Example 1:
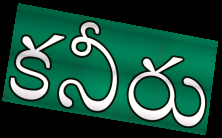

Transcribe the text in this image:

కనీరు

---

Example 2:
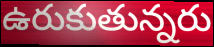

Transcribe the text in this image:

ఉరుకుతున్నరు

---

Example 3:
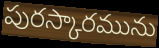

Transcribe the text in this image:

పురస్కారమును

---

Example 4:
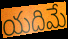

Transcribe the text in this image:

యదిమే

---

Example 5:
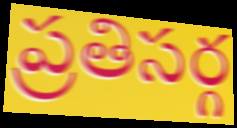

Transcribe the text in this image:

ప్రతిసర్గ